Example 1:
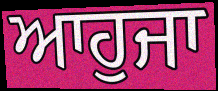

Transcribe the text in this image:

ਆਹੁਜਾ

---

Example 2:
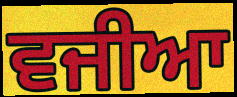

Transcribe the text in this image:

ਵਜੀਆ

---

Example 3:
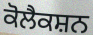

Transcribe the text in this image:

ਕੋਲੈਕਸ਼ਨ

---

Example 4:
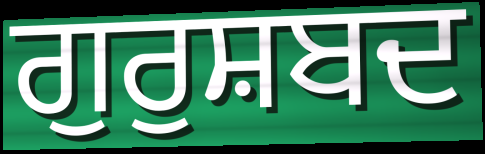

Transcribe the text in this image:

ਗੁਰੁਸ਼ਬਦ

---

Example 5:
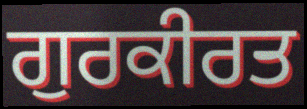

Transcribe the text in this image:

ਗੁਰਕੀਰਤ